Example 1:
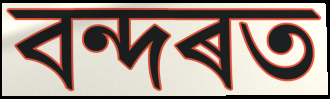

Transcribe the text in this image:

বন্দৰত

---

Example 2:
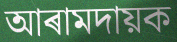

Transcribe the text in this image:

আৰামদায়ক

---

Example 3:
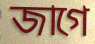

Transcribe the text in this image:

জাগে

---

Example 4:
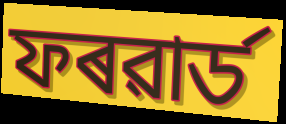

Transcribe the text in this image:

ফৰৱাৰ্ড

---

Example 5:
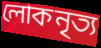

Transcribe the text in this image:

লোকনৃত্য